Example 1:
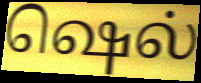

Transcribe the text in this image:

ஷெல்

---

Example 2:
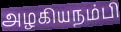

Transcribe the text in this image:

அழகியநம்பி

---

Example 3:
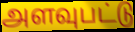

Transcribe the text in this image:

அளவுபட்டு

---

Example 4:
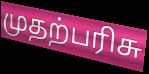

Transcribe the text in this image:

முதற்பரிசு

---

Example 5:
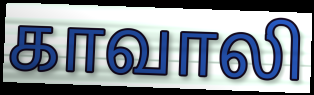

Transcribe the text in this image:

காவாலி